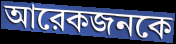
আরেকজনকে